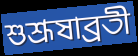
শুশ্রূষাব্রতী